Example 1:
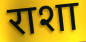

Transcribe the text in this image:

राशा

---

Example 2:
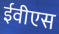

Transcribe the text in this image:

ईवीएस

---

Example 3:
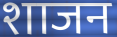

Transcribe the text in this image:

शाजन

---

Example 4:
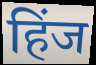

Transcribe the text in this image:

हिंज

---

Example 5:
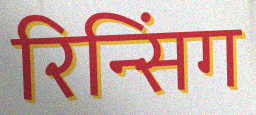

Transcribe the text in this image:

रिन्सिंग